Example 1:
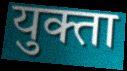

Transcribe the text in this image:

युक्ता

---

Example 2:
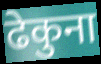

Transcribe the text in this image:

ढेकुना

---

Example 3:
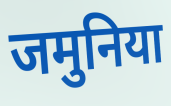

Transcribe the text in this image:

जमुनिया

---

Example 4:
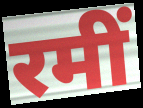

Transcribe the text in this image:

रमीं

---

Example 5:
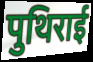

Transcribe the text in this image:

पुथिराई